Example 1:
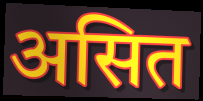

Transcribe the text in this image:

असित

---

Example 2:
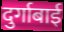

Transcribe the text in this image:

दुर्गाबाई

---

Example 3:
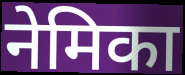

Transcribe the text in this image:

नेमिका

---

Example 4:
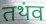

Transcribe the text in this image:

तथंव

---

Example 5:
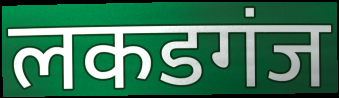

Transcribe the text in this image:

लकडगंज